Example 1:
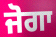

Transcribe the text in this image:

ਜੋਗਾ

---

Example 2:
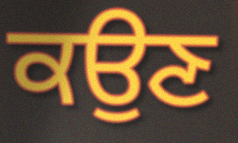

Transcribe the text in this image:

ਕਉਣ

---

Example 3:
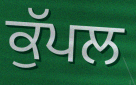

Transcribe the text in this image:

ਕੁੱਪਲ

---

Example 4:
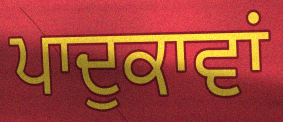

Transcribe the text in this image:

ਪਾਦੁਕਾਵਾਂ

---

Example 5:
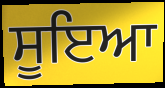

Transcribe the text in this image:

ਸੂਇਆ